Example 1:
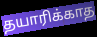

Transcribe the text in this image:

தயாரிக்காத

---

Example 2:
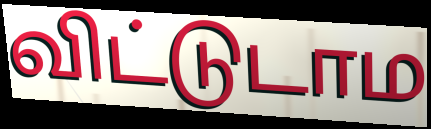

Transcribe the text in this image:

விட்டுடாம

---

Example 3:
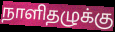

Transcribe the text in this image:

நாளிதழுக்கு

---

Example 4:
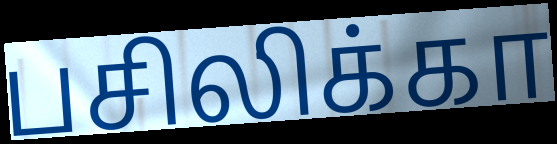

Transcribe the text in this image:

பசிலிக்கா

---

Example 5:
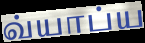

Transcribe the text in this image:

வ்யாப்ய